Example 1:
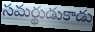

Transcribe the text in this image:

సమర్థుడుకాడు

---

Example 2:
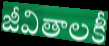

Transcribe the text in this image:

జీవితాలకీ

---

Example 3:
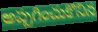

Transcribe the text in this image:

అప్పగించుకొనిన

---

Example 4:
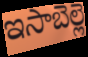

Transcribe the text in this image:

ఇసాబెల్లె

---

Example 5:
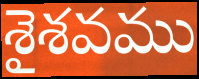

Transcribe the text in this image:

శైశవము